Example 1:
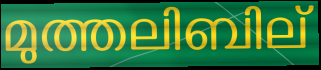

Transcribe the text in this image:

മുത്തലിബില്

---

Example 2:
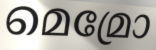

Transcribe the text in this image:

മെമ്രോ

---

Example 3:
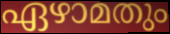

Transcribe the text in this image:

ഏഴാമതും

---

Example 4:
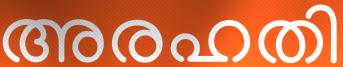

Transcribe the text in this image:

അരഹതി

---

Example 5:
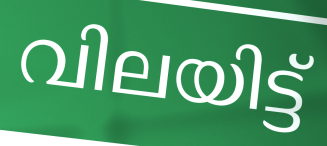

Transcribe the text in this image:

വിലയിട്ട്